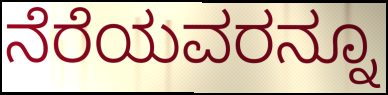
ನೆರೆಯವರನ್ನೂ